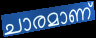
ചാരമാണ്